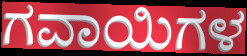
ಗವಾಯಿಗಳ